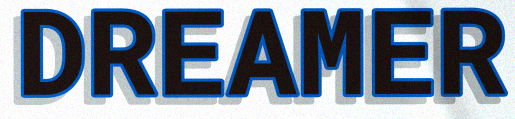
DREAMER